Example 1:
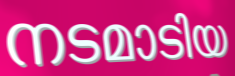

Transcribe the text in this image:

നടമാടിയ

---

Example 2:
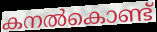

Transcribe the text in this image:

കനൽകൊണ്ട്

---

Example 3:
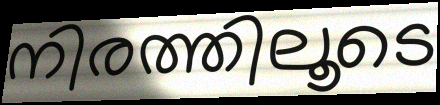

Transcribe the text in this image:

നിരത്തിലൂടെ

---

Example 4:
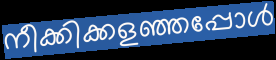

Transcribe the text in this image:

നീക്കിക്കളഞ്ഞപ്പോൾ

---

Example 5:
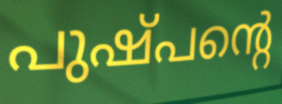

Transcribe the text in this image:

പുഷ്പന്റെ